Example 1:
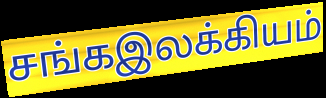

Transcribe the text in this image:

சங்கஇலக்கியம்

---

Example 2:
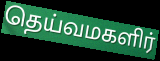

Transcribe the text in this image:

தெய்வமகளிர்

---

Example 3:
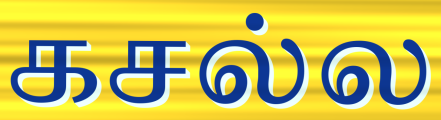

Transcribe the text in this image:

கசல்ல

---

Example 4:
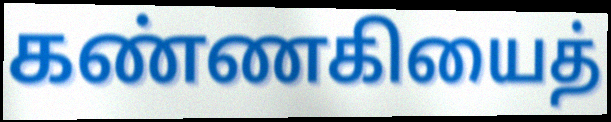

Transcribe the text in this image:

கண்ணகியைத்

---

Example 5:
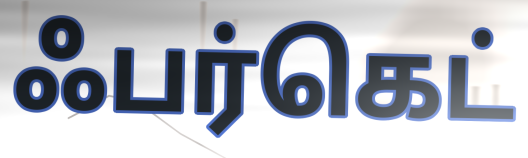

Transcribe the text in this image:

ஃபர்கெட்